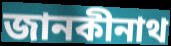
জানকীনাথ